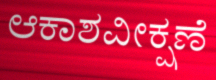
ಆಕಾಶವೀಕ್ಷಣೆ